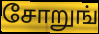
சோறுங்